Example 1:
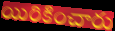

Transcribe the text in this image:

యిరికించారు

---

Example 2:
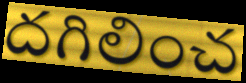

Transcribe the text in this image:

దగిలించ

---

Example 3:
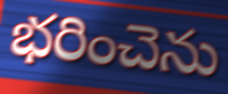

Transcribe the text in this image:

భరించెను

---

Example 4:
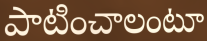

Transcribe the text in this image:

పాటించాలంటూ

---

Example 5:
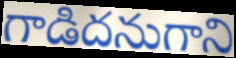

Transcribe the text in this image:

గాడిదనుగాని